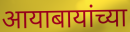
आयाबायांच्या